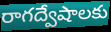
రాగద్వేషాలకు